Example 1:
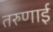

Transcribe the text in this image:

तरुणाई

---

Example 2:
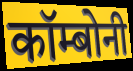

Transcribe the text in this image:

कॉम्बोनी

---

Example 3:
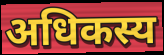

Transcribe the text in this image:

अधिकस्य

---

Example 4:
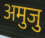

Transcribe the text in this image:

अमुजु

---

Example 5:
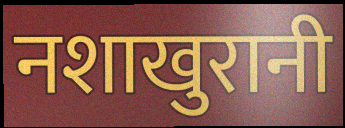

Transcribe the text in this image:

नशाखुरानी